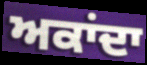
ਅਕਾਂਦਾ